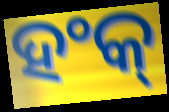
ହଂକ୍